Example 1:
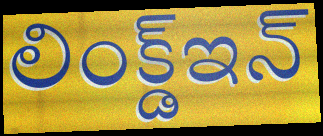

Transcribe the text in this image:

లింక్డ్ఇన్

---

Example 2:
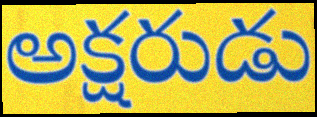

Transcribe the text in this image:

అక్షరుడు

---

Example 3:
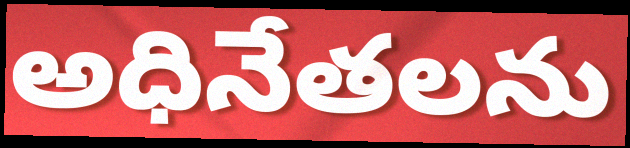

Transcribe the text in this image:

అధినేతలను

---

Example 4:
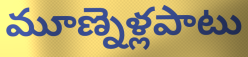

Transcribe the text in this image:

మూణ్నెళ్లపాటు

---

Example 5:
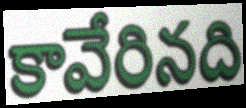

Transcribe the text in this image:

కావేరినది